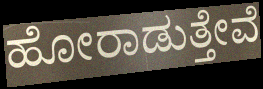
ಹೋರಾಡುತ್ತೇವೆ